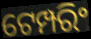
ଟେମ୍ପରିଂ